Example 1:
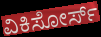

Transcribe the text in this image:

ವಿಕಿಸೋರ್ಸ್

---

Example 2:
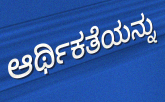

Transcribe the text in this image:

ಆರ್ಥಿಕತೆಯನ್ನು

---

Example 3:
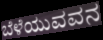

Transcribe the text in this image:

ಬೆಳೆಯುವವನ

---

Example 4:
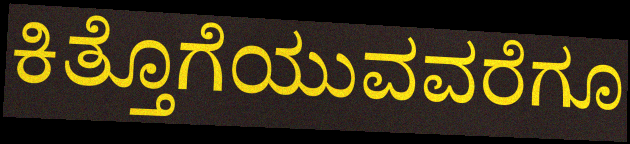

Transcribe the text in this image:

ಕಿತ್ತೊಗೆಯುವವರೆಗೂ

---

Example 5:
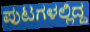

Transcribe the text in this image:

ಪುಟಗಳಲ್ಲಿದ್ದ